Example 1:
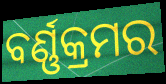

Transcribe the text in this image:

ବର୍ଣ୍ଣକ୍ରମର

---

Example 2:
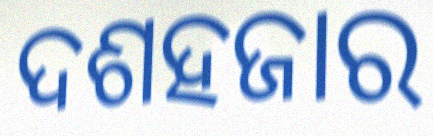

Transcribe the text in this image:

ଦଶହଜାର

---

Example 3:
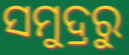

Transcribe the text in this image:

ସମୁଦ୍ରରୁ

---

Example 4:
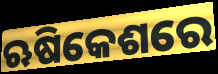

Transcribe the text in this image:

ଋଷିକେଶରେ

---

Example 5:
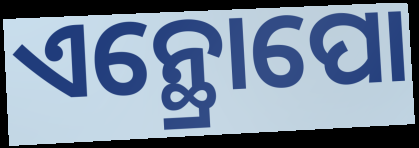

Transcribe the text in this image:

ଏନ୍ଥ୍ରୋପୋ